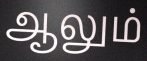
ஆலும்